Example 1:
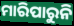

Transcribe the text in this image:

ମାରିପାରୁନି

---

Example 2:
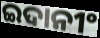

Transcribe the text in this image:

ଇଦାନୀଂ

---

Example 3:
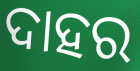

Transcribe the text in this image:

ଦାହର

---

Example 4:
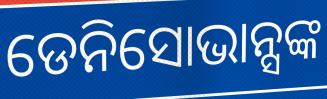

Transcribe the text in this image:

ଡେନିସୋଭାନ୍ସଙ୍କ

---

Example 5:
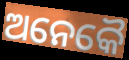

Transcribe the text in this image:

ଅନେକୈ